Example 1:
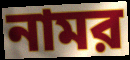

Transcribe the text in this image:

নামর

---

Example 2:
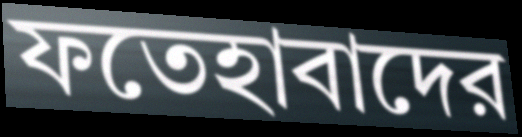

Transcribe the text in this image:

ফতেহাবাদের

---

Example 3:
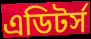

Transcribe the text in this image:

এডিটর্স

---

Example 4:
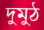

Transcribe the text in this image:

দুমুঠ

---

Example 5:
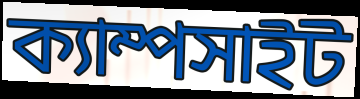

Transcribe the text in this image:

ক্যাম্পসাইট